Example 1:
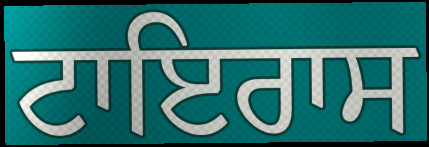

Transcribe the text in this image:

ਟਾਇਰਾਸ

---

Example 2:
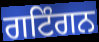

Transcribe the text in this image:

ਗਟਿੰਗਨ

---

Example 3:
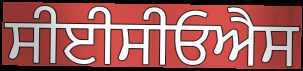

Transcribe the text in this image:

ਸੀਈਸੀਓਐਸ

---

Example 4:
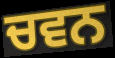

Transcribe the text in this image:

ਚਵਨ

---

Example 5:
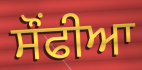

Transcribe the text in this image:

ਸੌਂਫੀਆ